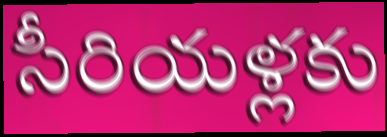
సీరియళ్లకు